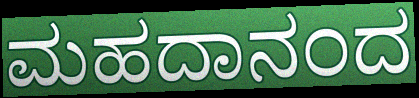
ಮಹದಾನಂದ